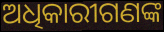
ଅଧିକାରୀଗଣଙ୍କ